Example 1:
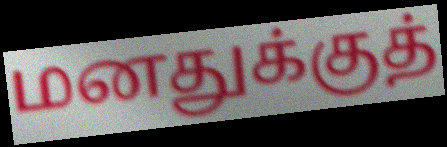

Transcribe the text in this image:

மனதுக்குத்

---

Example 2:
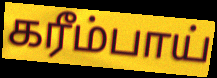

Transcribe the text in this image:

கரீம்பாய்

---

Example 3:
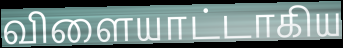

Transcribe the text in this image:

விளையாட்டாகிய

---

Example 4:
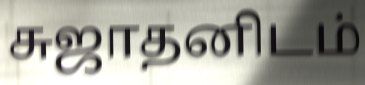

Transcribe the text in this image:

சுஜாதனிடம்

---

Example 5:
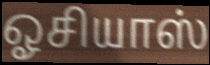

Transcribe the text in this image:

ஓசியாஸ்